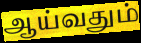
ஆய்வதும்